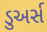
ડુઅર્સ